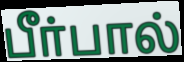
பீர்பால்